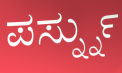
ಪರ್ಸ್ನ್ನು